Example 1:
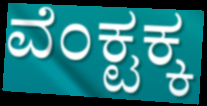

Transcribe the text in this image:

ವೆಂಕ್ಟಕ್ಕ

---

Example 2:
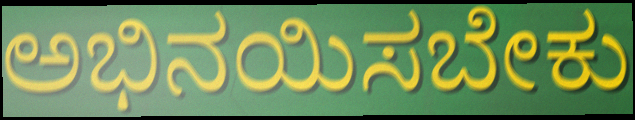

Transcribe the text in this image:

ಅಭಿನಯಿಸಬೇಕು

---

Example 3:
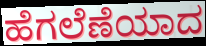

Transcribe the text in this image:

ಹೆಗಲೆಣೆಯಾದ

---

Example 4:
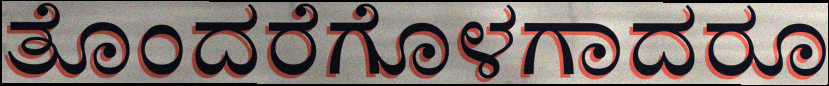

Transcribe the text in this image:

ತೊಂದರೆಗೊಳಗಾದರೂ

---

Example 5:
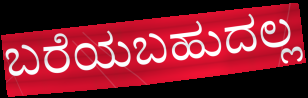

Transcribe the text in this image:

ಬರೆಯಬಹುದಲ್ಲ